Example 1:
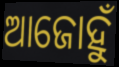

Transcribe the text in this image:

ଆଜୋହୁଁ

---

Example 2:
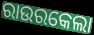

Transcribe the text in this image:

ରାଉରକେଲା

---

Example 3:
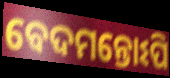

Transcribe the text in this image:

ବେଦମନ୍ତୋଽପି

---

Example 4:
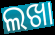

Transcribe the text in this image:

ଲଖା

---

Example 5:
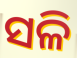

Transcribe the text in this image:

ସଳି